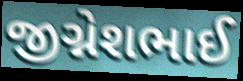
જીગ્નેશભાઈ